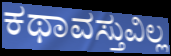
ಕಥಾವಸ್ತುವಿಲ್ಲ